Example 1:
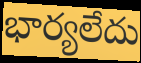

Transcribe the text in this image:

భార్యలేదు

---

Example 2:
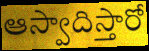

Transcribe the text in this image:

ఆస్వాదిస్తారో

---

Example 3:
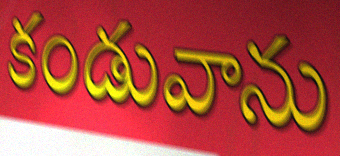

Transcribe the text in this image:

కండువాను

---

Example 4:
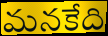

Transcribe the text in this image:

మనకేది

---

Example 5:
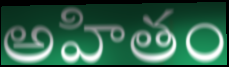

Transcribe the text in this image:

అహితం